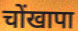
चोंखापा